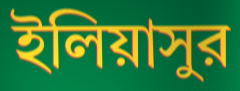
ইলিয়াসুর